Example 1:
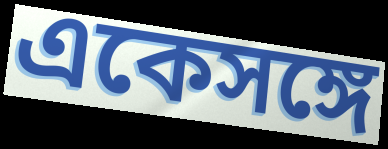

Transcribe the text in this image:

একেসঙ্গে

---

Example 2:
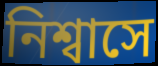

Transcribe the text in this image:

নিশ্বাসে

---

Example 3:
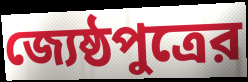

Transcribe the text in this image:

জ্যেষ্ঠপুত্রের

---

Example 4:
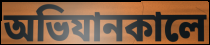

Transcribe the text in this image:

অভিযানকালে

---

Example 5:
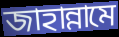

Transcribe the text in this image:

জাহান্নামে